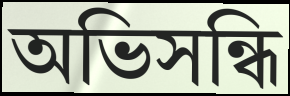
অভিসন্ধি